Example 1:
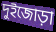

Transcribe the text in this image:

দুইজোড়া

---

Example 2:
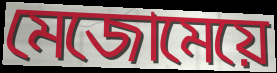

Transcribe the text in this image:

মেজোমেয়ে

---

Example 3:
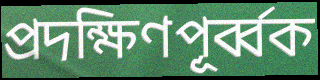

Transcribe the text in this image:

প্রদক্ষিণপূর্ব্বক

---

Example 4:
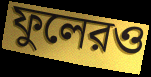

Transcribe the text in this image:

ফুলেরও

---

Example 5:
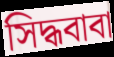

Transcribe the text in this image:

সিদ্ধবাবা